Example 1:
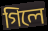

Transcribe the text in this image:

গিলে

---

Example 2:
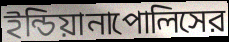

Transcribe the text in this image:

ইন্ডিয়ানাপোলিসের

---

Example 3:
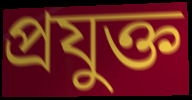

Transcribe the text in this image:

প্রযুক্ত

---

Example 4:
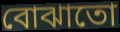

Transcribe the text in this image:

বোঝাতো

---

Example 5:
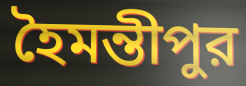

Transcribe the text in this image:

হৈমন্তীপুর